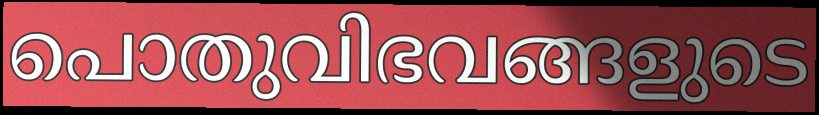
പൊതുവിഭവങ്ങളുടെ